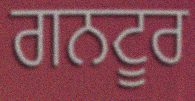
ਗਨਟੂਰ